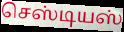
செஸ்டியஸ்